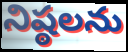
నిష్ఠలను